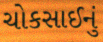
ચોકસાઈનું